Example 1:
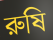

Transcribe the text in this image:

রুষি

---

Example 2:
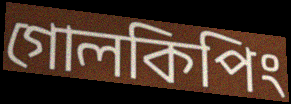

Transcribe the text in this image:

গোলকিপিং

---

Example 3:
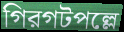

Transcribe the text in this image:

গিরগটপল্লে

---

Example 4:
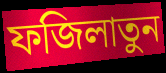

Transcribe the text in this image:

ফজিলাতুন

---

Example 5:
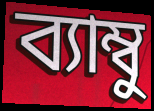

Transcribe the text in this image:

ব্যাম্বু